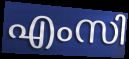
എംസി